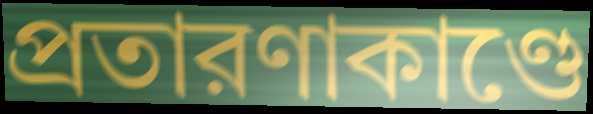
প্রতারণাকাণ্ডে